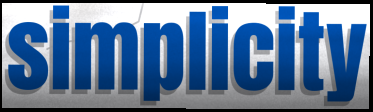
simplicity